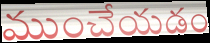
ముంచేయడం